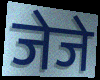
जेजे